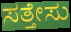
ಸತ್ತೇಸು